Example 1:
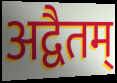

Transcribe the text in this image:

अद्वैतम्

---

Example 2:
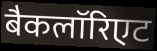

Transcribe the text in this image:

बैकलॉरिएट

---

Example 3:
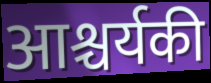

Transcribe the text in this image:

आश्चर्यकी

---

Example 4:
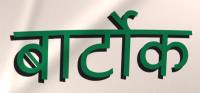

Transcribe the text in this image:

बार्टोक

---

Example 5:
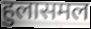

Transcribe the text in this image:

हुलासमल